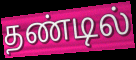
தண்டில்